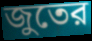
জুতের